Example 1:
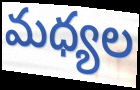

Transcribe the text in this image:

మధ్యల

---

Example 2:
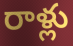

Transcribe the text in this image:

రాళ్లు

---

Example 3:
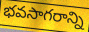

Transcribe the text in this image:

భవసాగరాన్ని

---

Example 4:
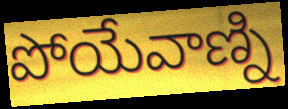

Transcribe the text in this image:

పోయేవాణ్ని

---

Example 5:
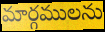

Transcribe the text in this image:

మార్గములను